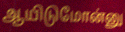
ஆயிடுமோன்னு